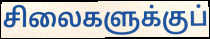
சிலைகளுக்குப்